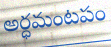
అర్ధమంటపం